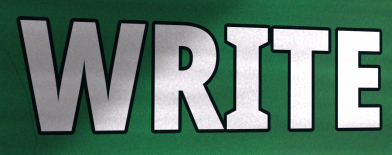
WRITE